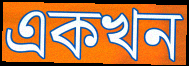
একখন